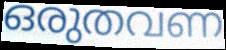
ഒരുതവണ